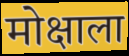
मोक्षाला